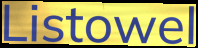
Listowel